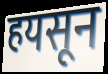
हयसून